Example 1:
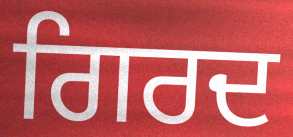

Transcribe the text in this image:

ਗਿਰਦ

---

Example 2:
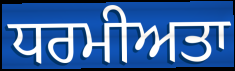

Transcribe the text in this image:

ਧਰਮੀਅਤਾ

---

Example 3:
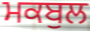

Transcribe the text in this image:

ਮਕਬੁਲ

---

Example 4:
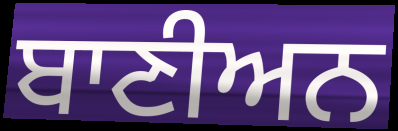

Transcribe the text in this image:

ਬਾਣੀਅਨ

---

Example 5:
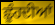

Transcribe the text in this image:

ਛੂੰਹਦੀਆਂ